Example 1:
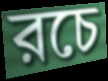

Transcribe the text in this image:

রচে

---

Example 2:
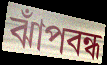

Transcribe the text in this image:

ঝাঁপবন্ধ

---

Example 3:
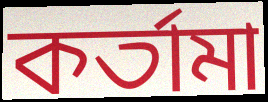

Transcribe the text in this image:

কর্তামা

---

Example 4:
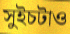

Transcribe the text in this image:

সুইচটাও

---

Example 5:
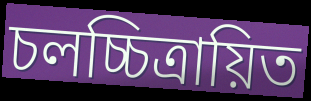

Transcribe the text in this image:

চলচ্চিত্রায়িত